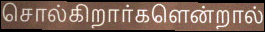
சொல்கிறார்களென்றால்